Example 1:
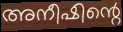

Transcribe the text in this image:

അനീഷിന്റെ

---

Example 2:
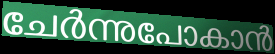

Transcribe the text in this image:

ചേർന്നുപോകാൻ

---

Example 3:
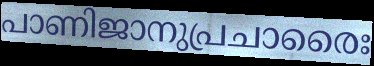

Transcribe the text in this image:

പാണിജാനുപ്രചാരൈഃ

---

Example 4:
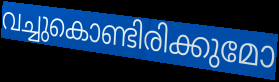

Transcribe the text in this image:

വച്ചുകൊണ്ടിരിക്കുമോ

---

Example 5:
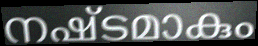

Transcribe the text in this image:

നഷ്‌ടമാകും